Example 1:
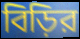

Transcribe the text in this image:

বিড়ির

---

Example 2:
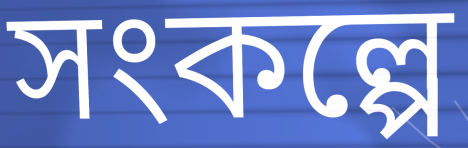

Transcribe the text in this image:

সংকল্পে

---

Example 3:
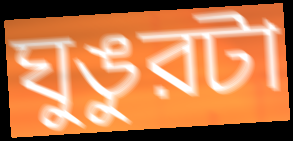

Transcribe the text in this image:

ঘুঙুরটা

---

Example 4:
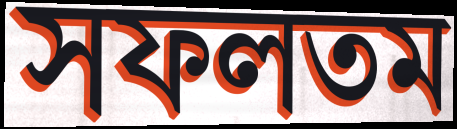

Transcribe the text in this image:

সফলতম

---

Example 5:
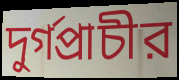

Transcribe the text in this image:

দুর্গপ্রাচীর